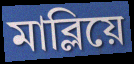
মাব্লিয়ে